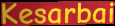
Kesarbai